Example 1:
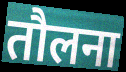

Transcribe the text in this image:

तौलना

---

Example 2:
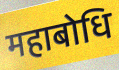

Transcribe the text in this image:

महाबोधि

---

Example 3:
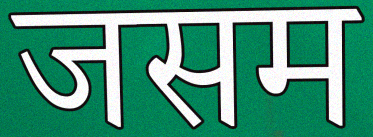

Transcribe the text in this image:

जसम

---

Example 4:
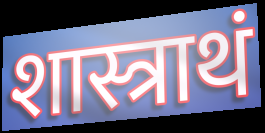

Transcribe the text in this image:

शास्त्राथं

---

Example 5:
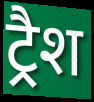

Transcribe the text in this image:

ट्रैश